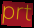
prt